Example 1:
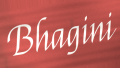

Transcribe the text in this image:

Bhagini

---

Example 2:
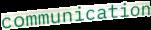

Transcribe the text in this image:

communication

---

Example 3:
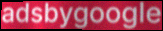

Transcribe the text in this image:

adsbygoogle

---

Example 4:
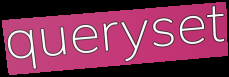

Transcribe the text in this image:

queryset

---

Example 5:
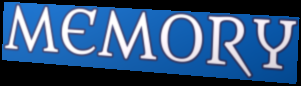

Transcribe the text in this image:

MEMORY